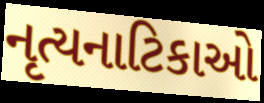
નૃત્યનાટિકાઓ